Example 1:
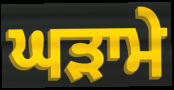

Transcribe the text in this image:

ਘੜਾਮੇ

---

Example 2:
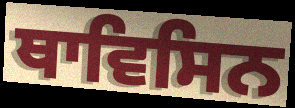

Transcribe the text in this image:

ਥਾਵਿਸਿਨ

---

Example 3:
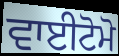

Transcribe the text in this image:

ਵਾਈਟੋਮੋ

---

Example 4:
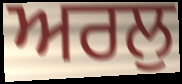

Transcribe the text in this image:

ਅਰਲੁ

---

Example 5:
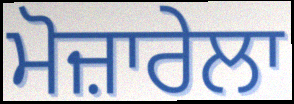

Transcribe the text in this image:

ਮੋਜ਼ਾਰੇਲਾ